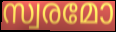
സ്വരമോ